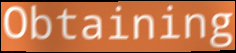
Obtaining